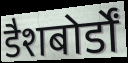
डैशबोर्डों